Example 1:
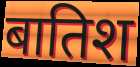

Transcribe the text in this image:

बातिश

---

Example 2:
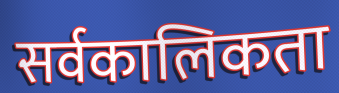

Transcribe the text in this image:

सर्वकालिकता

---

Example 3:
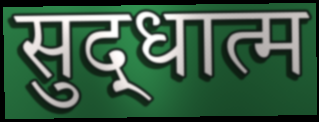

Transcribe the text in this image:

सुद्धात्म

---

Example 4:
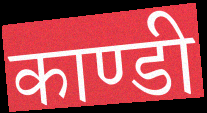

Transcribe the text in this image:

काण्डी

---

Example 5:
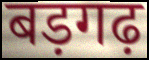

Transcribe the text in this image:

बड़गढ़